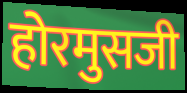
होरमुसजी